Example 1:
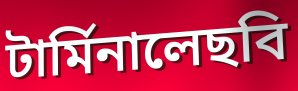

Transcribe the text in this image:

টার্মিনালেছবি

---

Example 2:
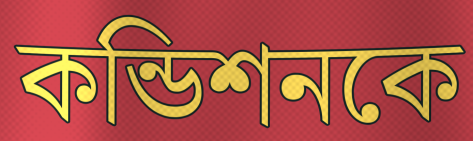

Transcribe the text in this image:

কন্ডিশনকে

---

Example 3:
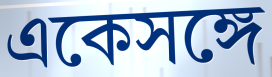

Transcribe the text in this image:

একেসঙ্গে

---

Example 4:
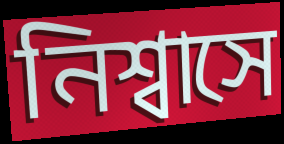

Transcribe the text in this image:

নিশ্বাসে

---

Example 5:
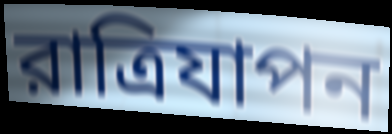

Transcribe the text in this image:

রাত্রিযাপন